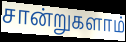
சான்றுகளாம்